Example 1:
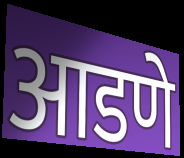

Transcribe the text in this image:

आडणे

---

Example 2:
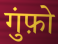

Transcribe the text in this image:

गुंफ़ो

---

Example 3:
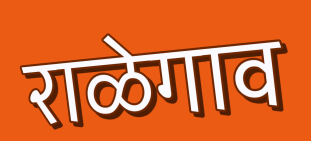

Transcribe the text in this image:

राळेगाव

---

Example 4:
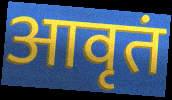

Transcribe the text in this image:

आवृतं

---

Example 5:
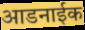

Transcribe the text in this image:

आडनाईक